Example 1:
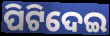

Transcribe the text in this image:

ପିଟିଦେଇ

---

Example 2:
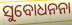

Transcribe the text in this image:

ସୁବୋଧନନା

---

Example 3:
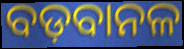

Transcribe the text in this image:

ବଡ଼ବାନଳ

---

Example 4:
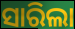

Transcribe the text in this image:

ସାରିଲା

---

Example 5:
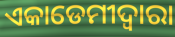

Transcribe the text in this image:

ଏକାଡେମୀଦ୍ୱାରା